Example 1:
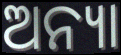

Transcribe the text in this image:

ଅନ୍ୟା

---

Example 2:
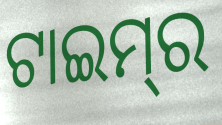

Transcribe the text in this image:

ଟାଇମ୍‌ର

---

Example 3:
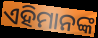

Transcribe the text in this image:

ଏହିମାନଙ୍କ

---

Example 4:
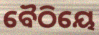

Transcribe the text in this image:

ବୈଠିୟେ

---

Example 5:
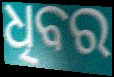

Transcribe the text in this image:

ଧିବର